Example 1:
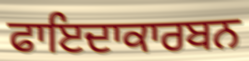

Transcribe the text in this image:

ਫਾਇਦਾਕਾਰਬਨ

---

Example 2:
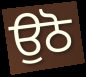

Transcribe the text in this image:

ਉਠੋ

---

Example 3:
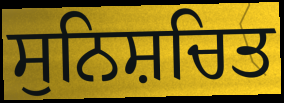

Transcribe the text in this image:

ਸੁਨਿਸ਼ਚਿਤ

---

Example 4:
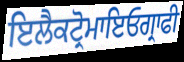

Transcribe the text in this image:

ਇਲੈਕਟ੍ਰੋਮਾਇਓਗ੍ਰਾਫੀ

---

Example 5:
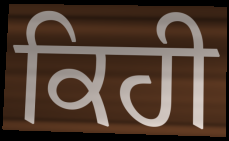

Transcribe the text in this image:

ਕਿਹੀ